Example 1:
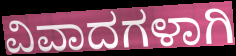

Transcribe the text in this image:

ವಿವಾದಗಳಾಗಿ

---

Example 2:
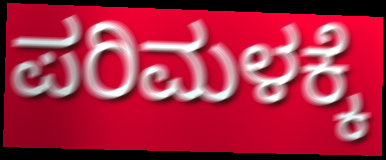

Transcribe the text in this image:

ಪರಿಮಳಕ್ಕೆ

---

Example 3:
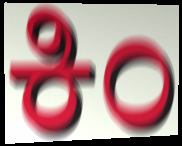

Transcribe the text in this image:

ಕಿಂ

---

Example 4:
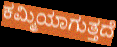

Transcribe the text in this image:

ಕಮ್ಮಿಯಾಗುತ್ತದೆ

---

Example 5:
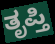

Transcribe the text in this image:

ತೃಪ್ತಿ